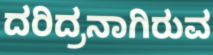
ದರಿದ್ರನಾಗಿರುವ